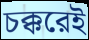
চক্করেই